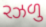
રઝળુ